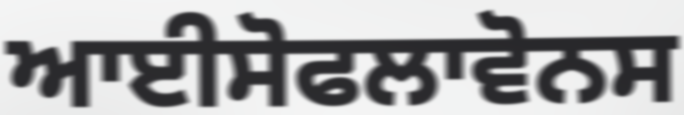
ਆਈਸੋਫਲਾਵੋਨਸ